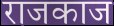
राजकाज